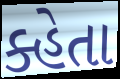
ક્હેતા